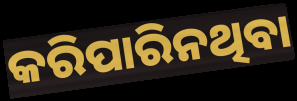
କରିପାରିନଥିବା